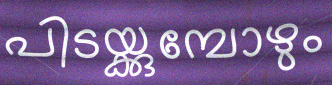
പിടയ്ക്കുമ്പോഴും